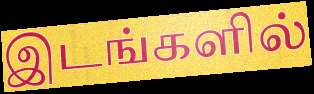
இடங்களில்